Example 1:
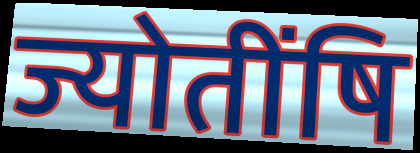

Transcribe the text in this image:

ज्योतींषि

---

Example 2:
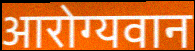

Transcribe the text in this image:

आरोग्यवान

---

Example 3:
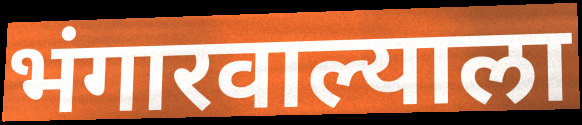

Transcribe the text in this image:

भंगारवाल्याला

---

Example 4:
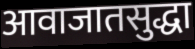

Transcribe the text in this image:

आवाजातसुद्धा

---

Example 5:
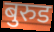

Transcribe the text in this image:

बुरुड